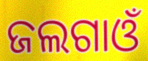
ଜଲଗାଓଁ